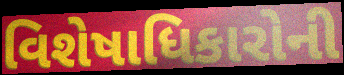
વિશેષાધિકારોની